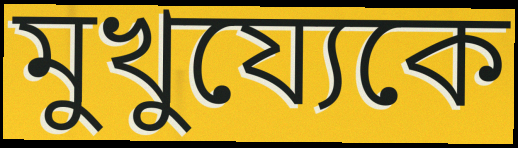
মুখুয্যেকে